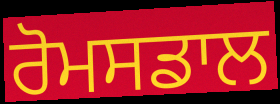
ਰੋਮਸਡਾਲ